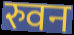
रुवन